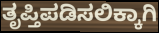
ತೃಪ್ತಿಪಡಿಸಲಿಕ್ಕಾಗಿ